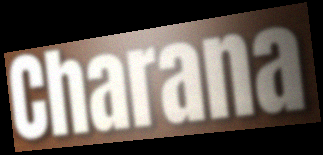
Charana